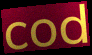
cod